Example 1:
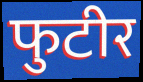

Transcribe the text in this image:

फुटीर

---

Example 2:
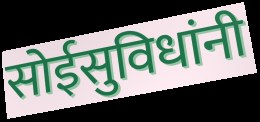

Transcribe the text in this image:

सोईसुविधांनी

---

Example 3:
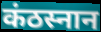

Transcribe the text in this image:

कंठस्नान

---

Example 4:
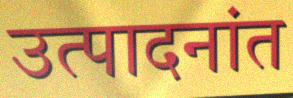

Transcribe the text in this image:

उत्पादनांत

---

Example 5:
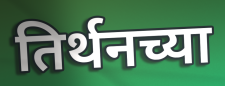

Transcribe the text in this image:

तिर्थनच्या